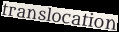
translocation